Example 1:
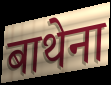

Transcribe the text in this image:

बाथेना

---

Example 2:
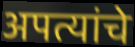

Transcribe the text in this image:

अपत्यांचे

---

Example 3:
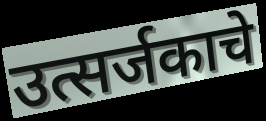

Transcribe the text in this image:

उत्सर्जकाचे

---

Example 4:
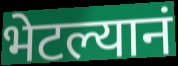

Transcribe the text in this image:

भेटल्यानं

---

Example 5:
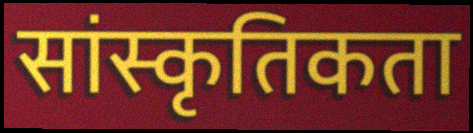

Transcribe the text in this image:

सांस्कृतिकता